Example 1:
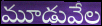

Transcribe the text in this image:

మూడువేల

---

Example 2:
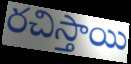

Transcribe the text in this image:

రచిస్తాయి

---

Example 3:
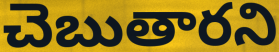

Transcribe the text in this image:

చెబుతారని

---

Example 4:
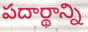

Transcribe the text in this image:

పదార్థాన్ని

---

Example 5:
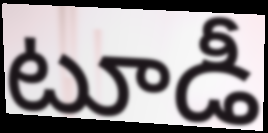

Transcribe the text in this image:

టూడీ